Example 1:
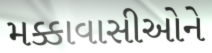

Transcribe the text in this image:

મક્કાવાસીઓને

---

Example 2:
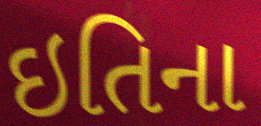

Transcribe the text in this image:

ઇતિના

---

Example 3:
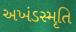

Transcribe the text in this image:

અખંડસ્મૃતિ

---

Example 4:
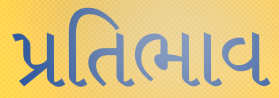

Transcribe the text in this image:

પ્રતિભાવ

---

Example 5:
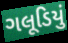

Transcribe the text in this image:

ગલૂડિયું